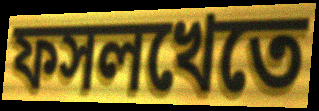
ফসলখেতে